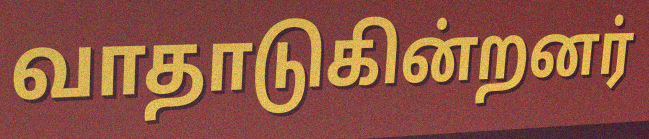
வாதாடுகின்றனர்